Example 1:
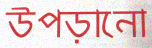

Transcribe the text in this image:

উপড়ানো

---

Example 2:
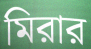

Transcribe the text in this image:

মিরার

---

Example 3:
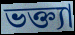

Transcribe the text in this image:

ভক্ত্যা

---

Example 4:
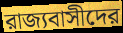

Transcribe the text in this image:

রাজ্যবাসীদের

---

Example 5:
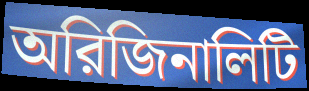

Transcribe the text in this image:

অরিজিনালিটি